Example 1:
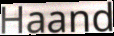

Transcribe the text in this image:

Haand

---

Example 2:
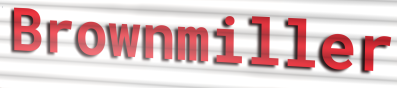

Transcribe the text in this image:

Brownmiller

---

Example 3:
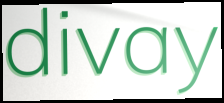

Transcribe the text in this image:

divay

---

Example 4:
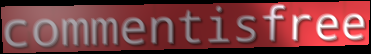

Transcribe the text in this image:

commentisfree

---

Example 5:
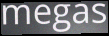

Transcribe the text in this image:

megas